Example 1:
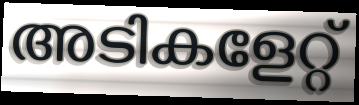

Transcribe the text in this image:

അടികളേറ്റ്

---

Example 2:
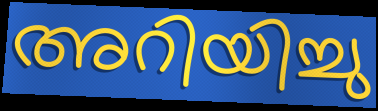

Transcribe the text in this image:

അറിയിച്ചു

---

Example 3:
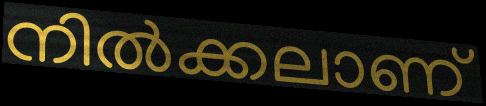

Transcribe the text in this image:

നിൽക്കലാണ്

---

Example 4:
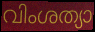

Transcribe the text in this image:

വിംശത്യാ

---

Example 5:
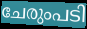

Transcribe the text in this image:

ചേരുംപടി